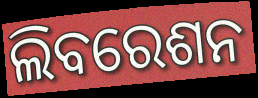
ଲିବରେଶନ